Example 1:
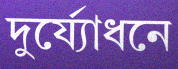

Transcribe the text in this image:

দুর্য্যোধনে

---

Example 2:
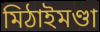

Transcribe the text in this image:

মিঠাইমণ্ডা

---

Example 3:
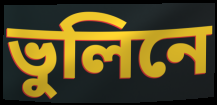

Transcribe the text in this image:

ভুলিনে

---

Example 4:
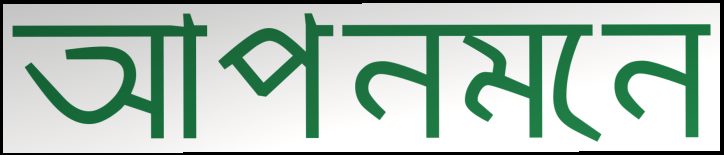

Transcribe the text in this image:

আপনমনে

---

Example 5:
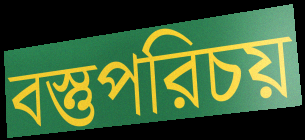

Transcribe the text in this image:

বস্তুপরিচয়